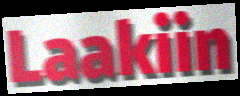
Laakiin